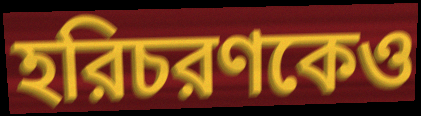
হরিচরণকেও